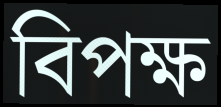
বিপক্ষ